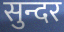
सुन्‍दर